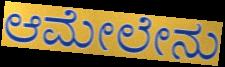
ಆಮೇಲೇನು